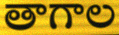
తాగాల